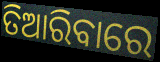
ତିଆରିବାରେ